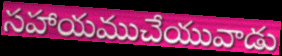
సహాయముచేయువాడు